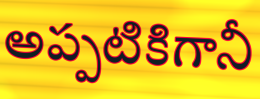
అప్పటికిగానీ